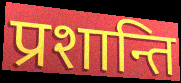
प्रशान्ति